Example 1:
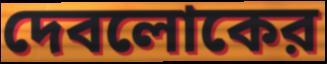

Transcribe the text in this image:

দেবলোকের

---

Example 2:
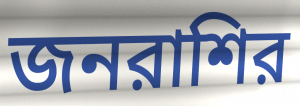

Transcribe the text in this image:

জনরাশির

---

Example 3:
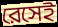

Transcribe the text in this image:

রেসেই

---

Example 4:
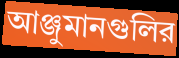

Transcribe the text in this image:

আঞ্জুমানগুলির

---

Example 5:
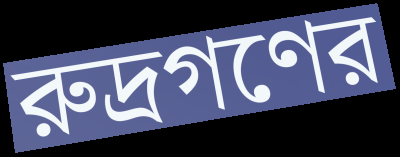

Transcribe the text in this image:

রুদ্রগণের